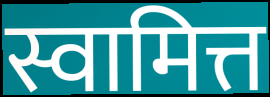
स्वामित्त